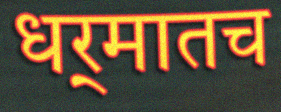
धर्मातच